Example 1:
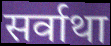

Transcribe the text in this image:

सर्वाथा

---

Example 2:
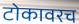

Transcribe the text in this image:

टोकावरच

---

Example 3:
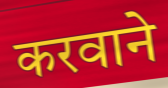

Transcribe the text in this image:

करवाने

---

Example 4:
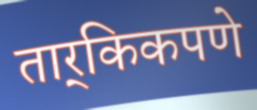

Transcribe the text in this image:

तार्किकपणे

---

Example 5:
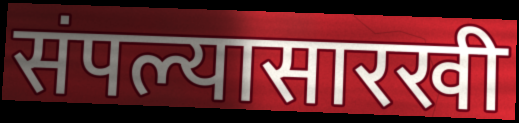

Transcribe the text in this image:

संपल्यासारखी